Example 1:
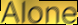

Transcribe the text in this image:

Alone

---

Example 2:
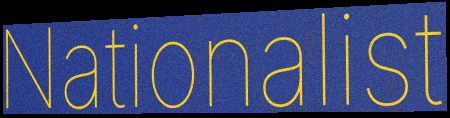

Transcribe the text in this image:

Nationalist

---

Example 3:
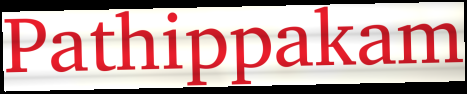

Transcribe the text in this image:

Pathippakam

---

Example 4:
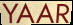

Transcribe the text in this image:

YAAR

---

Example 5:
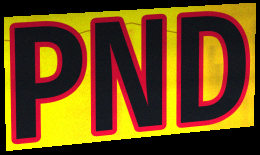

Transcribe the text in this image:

PND